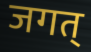
जगत्